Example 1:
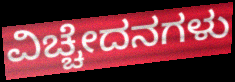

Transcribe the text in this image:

ವಿಚ್ಚೇದನಗಳು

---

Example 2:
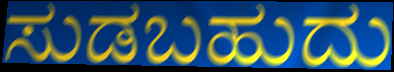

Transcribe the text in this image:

ಸುಡಬಹುದು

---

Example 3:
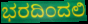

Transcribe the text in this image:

ಭರದಿಂದಲಿ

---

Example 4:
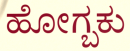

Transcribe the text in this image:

ಹೋಗ್ಬಕು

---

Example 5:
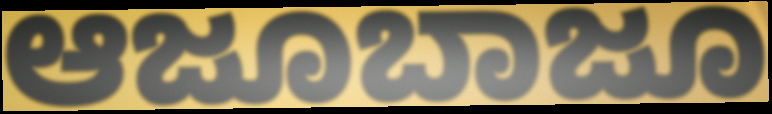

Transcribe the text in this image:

ಆಜೂಬಾಜೂ